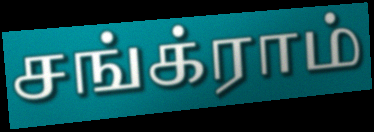
சங்க்ராம்